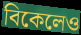
বিকেলেও